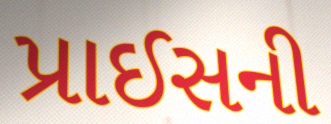
પ્રાઈસની